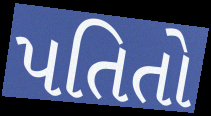
પતિતો